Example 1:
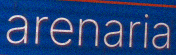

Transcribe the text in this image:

arenaria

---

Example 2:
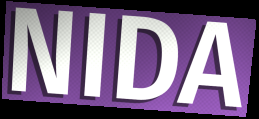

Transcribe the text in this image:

NIDA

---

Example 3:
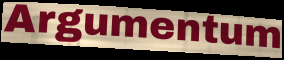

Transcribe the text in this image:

Argumentum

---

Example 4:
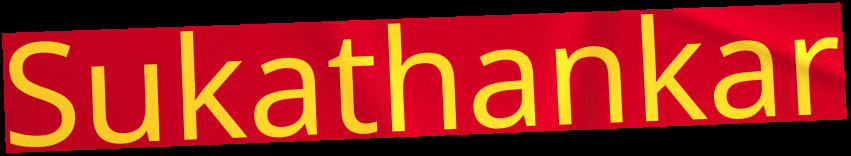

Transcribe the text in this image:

Sukathankar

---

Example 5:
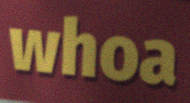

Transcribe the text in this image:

whoa